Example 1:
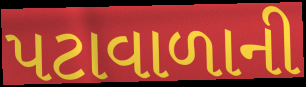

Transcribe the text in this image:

પટાવાળાની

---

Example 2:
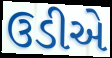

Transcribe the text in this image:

ઉડીએ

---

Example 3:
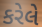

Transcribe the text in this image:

કરેલે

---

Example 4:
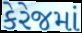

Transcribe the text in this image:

કેરેજમાં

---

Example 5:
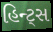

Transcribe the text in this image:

હિન્ટ્સ